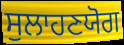
ਸੁਲਾਹਣਯੋਗ